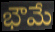
భౌమే